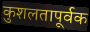
कुशलतापूर्वक